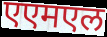
एएमएल